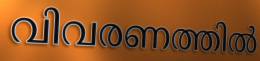
വിവരണത്തിൽ